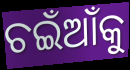
ଚଇଁଆଁକୁ